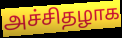
அச்சிதழாக